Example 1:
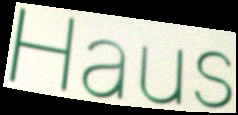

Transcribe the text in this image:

Haus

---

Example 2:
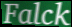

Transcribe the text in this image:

Falck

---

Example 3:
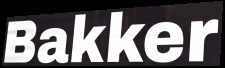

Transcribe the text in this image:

Bakker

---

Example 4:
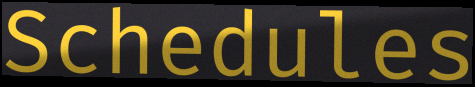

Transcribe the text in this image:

Schedules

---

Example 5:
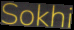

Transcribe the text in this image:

Sokhi